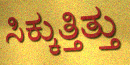
ಸಿಕ್ಕುತ್ತಿತ್ತು